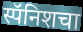
स्पॅनिशचा